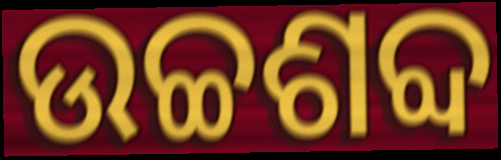
ଉଚ୍ଚଶବ୍ଦ